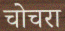
चोचरा